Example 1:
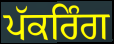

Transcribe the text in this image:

ਪੱਕਰਿੰਗ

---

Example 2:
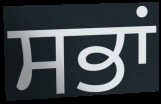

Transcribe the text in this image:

ਸਭਾਂ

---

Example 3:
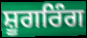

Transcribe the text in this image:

ਸ਼ੂਗਰਿੰਗ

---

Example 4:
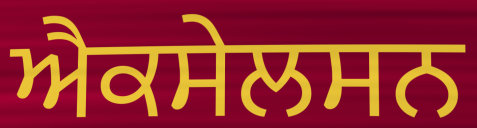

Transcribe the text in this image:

ਐਕਸੇਲਸਨ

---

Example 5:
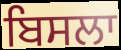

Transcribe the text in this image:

ਬਿਸਲਾ